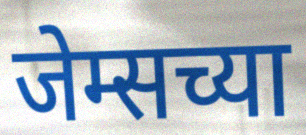
जेम्सच्या